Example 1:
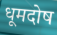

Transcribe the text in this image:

धूमदोष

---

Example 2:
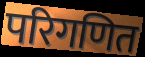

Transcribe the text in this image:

परिगणित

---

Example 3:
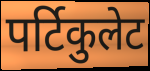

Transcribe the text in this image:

पर्टिकुलेट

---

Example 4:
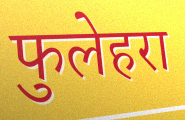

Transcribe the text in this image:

फुलेहरा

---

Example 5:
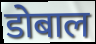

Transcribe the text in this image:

डोबाल